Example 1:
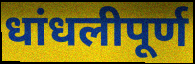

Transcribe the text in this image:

धांधलीपूर्ण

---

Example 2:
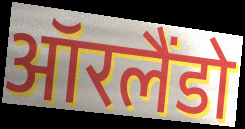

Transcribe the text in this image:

ऑरलैंडो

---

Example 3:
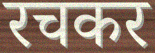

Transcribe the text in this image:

रचकर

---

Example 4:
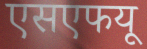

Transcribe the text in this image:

एसएफयू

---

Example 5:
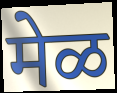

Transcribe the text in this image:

मेळ